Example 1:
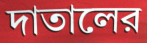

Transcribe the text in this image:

দাতালের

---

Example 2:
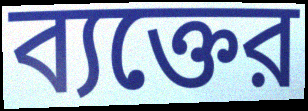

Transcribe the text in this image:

ব্যক্তের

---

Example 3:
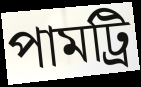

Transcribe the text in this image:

পামট্রি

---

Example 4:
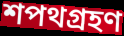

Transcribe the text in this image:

শপথগ্রহণ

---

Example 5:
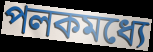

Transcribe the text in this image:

পলকমধ্যে